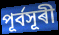
পূৰ্বসূৰী